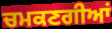
ਚਮਕਣਗੀਆਂ